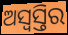
ଅସ୍ୱସ୍ତିର